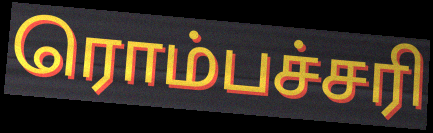
ரொம்பச்சரி